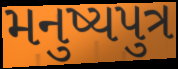
મનુષ્યપુત્ર